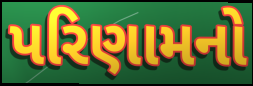
પરિણામનો